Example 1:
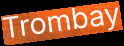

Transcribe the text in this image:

Trombay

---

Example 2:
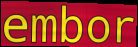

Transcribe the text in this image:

embor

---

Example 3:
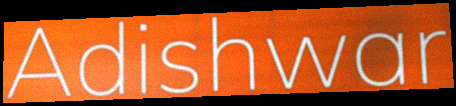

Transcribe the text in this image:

Adishwar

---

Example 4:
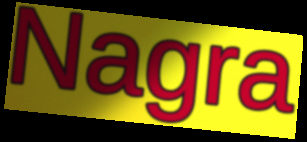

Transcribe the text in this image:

Nagra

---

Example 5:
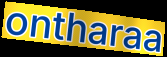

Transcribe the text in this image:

ontharaa